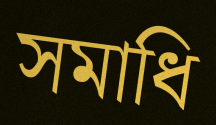
সমাধি